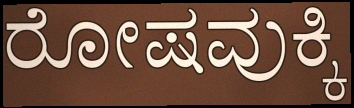
ರೋಷವುಕ್ಕಿ